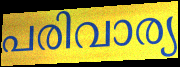
പരിവാര്യ